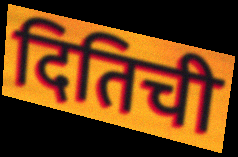
दितिची